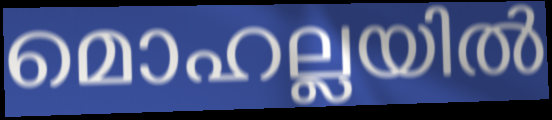
മൊഹല്ലയിൽ